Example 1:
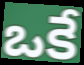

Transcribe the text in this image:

ఒకే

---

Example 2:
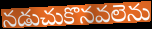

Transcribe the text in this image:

నడుచుకొనవలెను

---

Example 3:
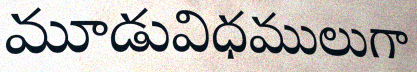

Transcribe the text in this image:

మూడువిధములుగా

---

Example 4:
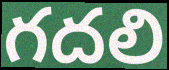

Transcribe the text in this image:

గదలి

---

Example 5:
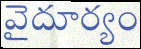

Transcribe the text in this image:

వైదూర్యం